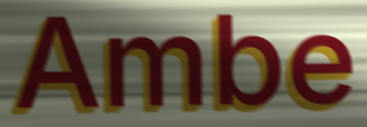
Ambe